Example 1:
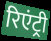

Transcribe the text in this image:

रिएंट्री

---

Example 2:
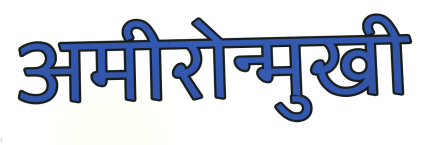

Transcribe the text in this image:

अमीरोन्मुखी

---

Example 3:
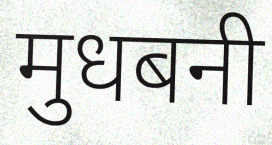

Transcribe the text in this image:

मुधबनी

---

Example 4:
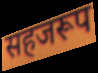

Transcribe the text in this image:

सहजरूप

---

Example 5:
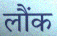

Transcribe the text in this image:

लौंक